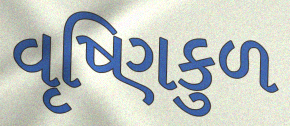
વૃષ્ણિકુળ